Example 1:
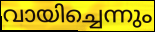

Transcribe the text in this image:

വായിച്ചെന്നും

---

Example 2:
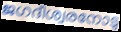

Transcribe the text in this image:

ജഗദീശ്വരനോടു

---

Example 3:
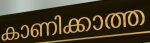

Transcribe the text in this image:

കാണിക്കാത്ത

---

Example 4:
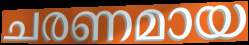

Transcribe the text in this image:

ചരണമായ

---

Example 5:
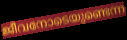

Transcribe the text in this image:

ജീവനോടെയുണ്ടെന്ന